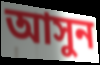
আসুন